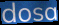
dosa